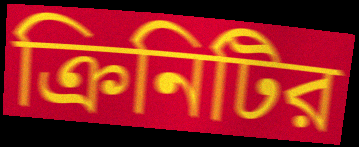
ক্রিনিটির